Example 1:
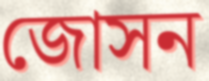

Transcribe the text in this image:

জোসন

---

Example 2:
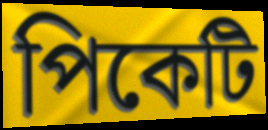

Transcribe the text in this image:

পিকেটি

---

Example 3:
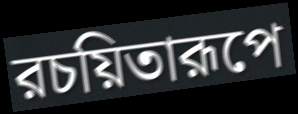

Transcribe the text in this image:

রচয়িতারূপে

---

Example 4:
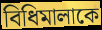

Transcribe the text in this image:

বিধিমালাকে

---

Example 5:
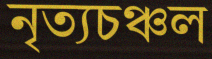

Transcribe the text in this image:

নৃত্যচঞ্চল